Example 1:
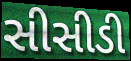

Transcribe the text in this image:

સીસીડી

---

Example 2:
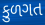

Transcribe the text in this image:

કુળગત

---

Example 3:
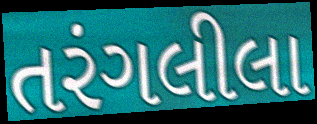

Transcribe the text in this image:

તરંગલીલા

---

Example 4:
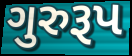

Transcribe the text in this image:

ગુરુરૂપ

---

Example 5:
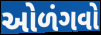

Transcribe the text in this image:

ઓળંગવો